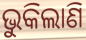
ଭୁକିଲାଣି